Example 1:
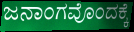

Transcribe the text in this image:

ಜನಾಂಗವೊಂದಕ್ಕೆ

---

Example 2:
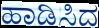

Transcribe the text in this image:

ಹಾಡಿಸಿದ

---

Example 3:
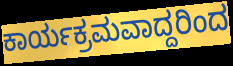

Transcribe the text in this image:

ಕಾರ್ಯಕ್ರಮವಾದ್ದರಿಂದ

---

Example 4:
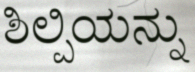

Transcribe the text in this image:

ಶಿಲ್ಪಿಯನ್ನು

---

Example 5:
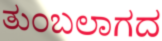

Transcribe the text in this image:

ತುಂಬಲಾಗದ